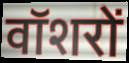
वॉशरों